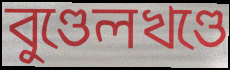
বুণ্ডেলখণ্ডে